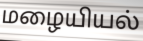
மழையியல்